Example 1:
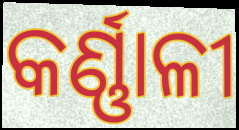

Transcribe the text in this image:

କର୍ଣ୍ଣାଳୀ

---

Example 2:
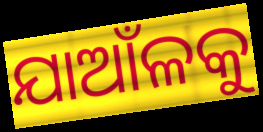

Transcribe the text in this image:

ଯାଆଁଳକୁ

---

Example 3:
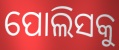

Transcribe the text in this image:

ପୋଲିସକୁ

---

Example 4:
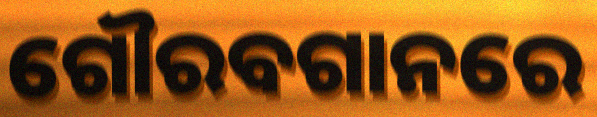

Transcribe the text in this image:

ଗୌରବଗାନରେ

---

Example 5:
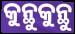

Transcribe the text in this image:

କୁନ୍ଥୁକୁନ୍ଥୁ